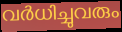
വർധിച്ചുവരും